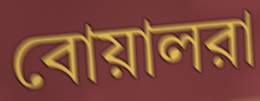
বোয়ালরা